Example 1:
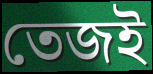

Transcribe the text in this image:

তেজই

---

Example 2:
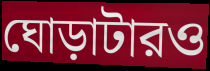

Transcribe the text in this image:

ঘোড়াটারও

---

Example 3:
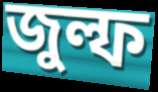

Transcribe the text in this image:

জুল্ফ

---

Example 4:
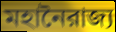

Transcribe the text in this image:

মহানৈরাজ্য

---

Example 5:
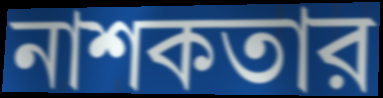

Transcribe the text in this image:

নাশকতার